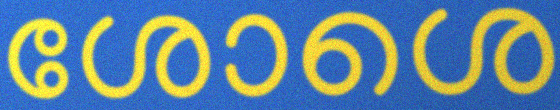
ശോശെ